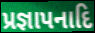
પ્રજ્ઞાપનાદિ